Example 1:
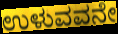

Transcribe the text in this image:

ಉಳುವವನೇ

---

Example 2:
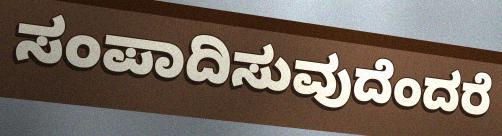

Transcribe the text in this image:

ಸಂಪಾದಿಸುವುದೆಂದರೆ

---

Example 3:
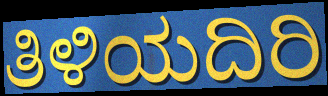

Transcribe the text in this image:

ತಿಳಿಯದಿರಿ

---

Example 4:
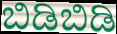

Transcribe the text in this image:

ಬಿಡಿಬಿಡಿ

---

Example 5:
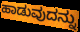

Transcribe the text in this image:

ಹಾಡುವುದನ್ನು